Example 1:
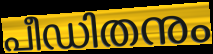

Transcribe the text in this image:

പീഡിതനും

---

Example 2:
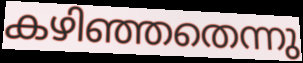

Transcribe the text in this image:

കഴിഞ്ഞതെന്നു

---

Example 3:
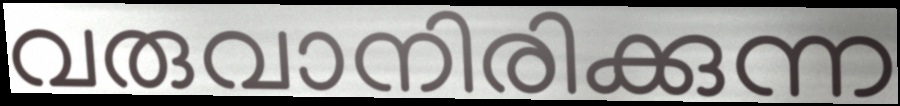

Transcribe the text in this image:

വരുവാനിരിക്കുന്ന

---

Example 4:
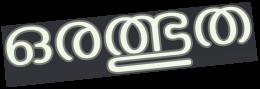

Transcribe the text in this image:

ഒരത്ഭുത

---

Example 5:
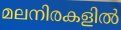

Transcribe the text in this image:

മലനിരകളിൽ